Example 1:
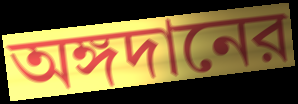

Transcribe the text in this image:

অঙ্গদানের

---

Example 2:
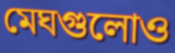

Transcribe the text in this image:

মেঘগুলোও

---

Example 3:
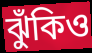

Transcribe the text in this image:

ঝুঁকিও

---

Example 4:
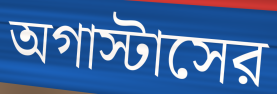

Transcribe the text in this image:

অগাস্টাসের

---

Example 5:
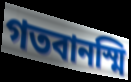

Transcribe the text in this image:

গতবানস্মি